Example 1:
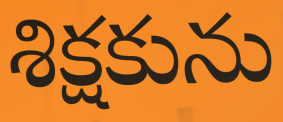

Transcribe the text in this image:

శిక్షకును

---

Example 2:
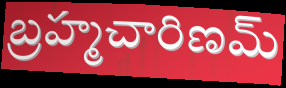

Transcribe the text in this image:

బ్రహ్మచారిణమ్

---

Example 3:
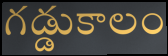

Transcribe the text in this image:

గడ్డుకాలం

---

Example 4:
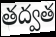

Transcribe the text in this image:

తద్వత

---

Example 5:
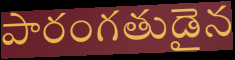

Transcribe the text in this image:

పారంగతుడైన